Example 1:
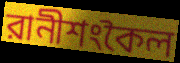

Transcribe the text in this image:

রানীশংকৈল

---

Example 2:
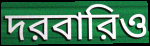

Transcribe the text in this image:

দরবারিও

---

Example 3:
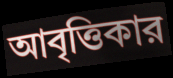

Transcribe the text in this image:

আবৃত্তিকার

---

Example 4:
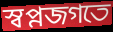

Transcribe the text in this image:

স্বপ্নজগতে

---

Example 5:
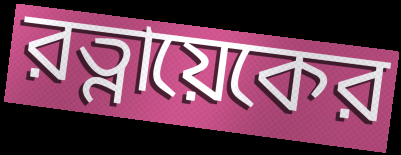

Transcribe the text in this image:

রত্নায়েকের